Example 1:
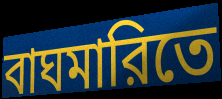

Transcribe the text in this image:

বাঘমারিতে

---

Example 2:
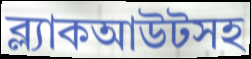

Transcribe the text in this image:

ব্ল্যাকআউটসহ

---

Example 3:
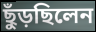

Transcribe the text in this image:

ছুঁড়ছিলেন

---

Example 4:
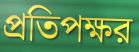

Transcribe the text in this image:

প্রতিপক্ষর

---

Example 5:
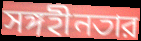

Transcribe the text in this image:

সঙ্গহীনতার